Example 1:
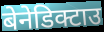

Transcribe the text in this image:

बेनेडिक्टाउ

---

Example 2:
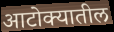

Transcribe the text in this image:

आटोक्यातील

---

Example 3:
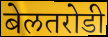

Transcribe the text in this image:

बेलतरोडी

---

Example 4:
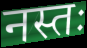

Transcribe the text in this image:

नस्तः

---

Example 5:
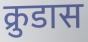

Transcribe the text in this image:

क्रुडास